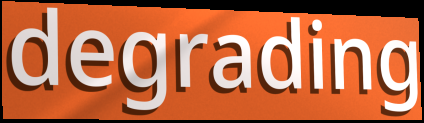
degrading